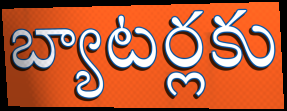
బ్యాటర్లకు